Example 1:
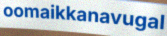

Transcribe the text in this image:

oomaikkanavugal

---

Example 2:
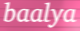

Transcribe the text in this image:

baalya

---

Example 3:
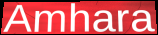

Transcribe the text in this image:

Amhara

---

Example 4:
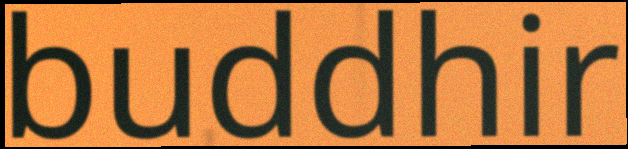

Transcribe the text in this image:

buddhir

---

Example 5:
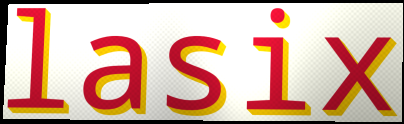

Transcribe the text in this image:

lasix